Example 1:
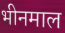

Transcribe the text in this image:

भीनमाल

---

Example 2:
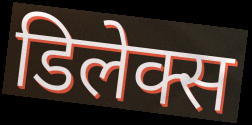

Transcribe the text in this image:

डिलेक्स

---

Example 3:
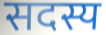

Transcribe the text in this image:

सदस्य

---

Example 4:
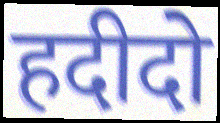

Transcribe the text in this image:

हदीदो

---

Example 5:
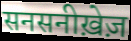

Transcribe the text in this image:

सनसनीख़ेज़